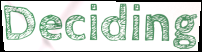
Deciding